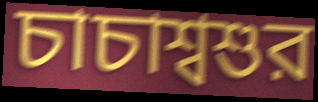
চাচাশ্বশুর